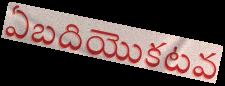
ఏబదియొకటవ